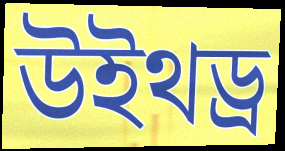
উইথড্র